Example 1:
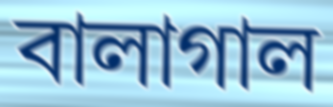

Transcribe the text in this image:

বালাগাল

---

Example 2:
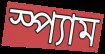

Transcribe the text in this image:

স্প্যাম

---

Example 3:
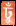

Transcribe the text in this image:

ঢুঁ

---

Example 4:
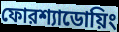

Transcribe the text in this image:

ফোরশ্যাডোয়িং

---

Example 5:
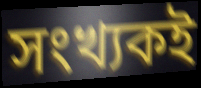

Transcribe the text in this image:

সংখ্যকই